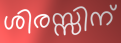
ശിരസ്സിന്